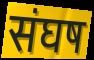
संघष